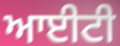
ਆਈਟੀ